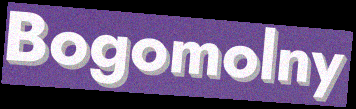
Bogomolny